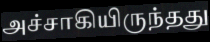
அச்சாகியிருந்தது